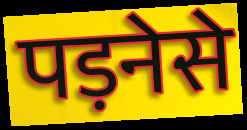
पड़नेसे